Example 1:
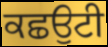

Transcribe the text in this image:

ਕਛਉਟੀ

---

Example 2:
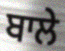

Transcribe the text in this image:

ਬਾਲੇ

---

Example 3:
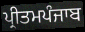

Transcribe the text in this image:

ਪ੍ਰੀਤਮਪੰਜਾਬ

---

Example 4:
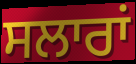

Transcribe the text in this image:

ਸਲਾਰਾਂ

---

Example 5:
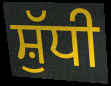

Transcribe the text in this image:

ਸ਼ੁੱਧੀ